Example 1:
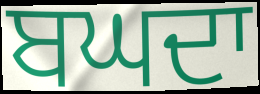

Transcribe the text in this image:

ਬਘਦਾ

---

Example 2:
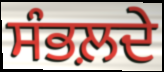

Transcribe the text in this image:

ਸੰਭਲ਼ਦੇ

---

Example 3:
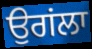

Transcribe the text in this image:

ਉਗਂਲਾ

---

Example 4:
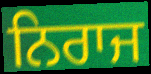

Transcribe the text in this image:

ਨਿਰਾਜ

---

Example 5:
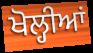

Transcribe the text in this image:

ਖੋਲ੍ਹੀਆਂ